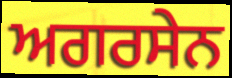
ਅਗਰਸੇਨ